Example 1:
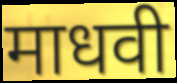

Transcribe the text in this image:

माधवी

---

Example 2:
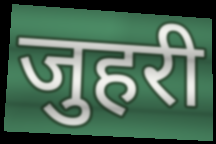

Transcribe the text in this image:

जुहरी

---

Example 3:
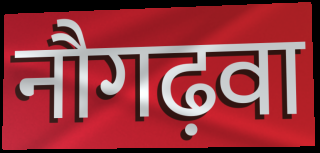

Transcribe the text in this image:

नौगढ़वा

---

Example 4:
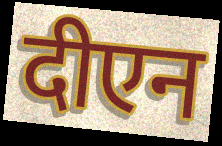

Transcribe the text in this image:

दीएन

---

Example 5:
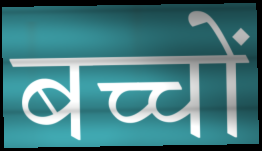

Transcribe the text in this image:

बच्‍चों